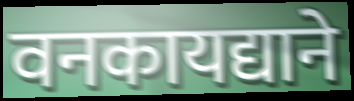
वनकायद्याने